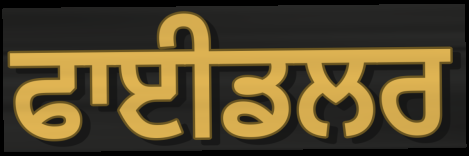
ਫਾਈਡਲਰ